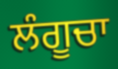
ਲੰਗੂਚਾ